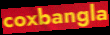
coxbangla